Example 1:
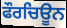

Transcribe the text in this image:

ਫੌਰਚਿਊਨ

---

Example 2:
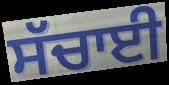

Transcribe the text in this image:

ਸੱਚਾਈ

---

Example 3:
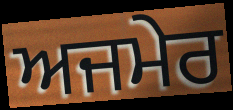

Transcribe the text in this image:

ਅਜਮੇਰ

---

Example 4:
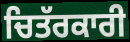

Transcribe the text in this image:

ਚਿਤੱਰਕਾਰੀ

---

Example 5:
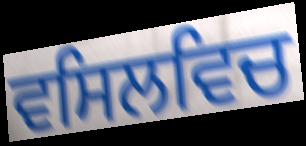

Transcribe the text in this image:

ਵਸਿਲਵਿਚ